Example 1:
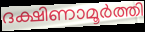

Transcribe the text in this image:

ദക്ഷിണാമൂർത്തി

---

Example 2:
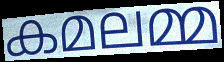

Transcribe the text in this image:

കമലമ്മ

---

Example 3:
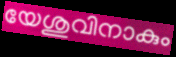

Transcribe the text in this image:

യേശുവിനാകും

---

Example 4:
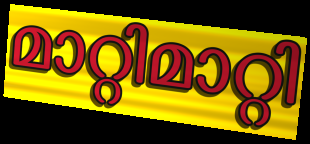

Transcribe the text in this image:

മാറ്റിമാറ്റി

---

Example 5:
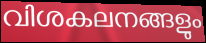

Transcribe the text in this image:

വിശകലനങ്ങളും